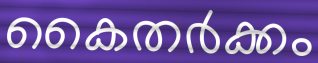
കൈതർക്കം